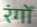
रंगोँ